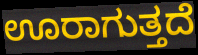
ಊರಾಗುತ್ತದೆ